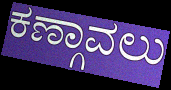
ಕಣ್ಗಾವಲು